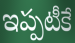
ఇప్పటీకే